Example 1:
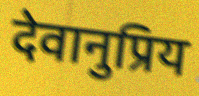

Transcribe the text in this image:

देवानुप्रिय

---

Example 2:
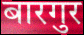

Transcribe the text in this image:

बारगुर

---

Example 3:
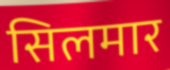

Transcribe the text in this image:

सिलमार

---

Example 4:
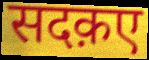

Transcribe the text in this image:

सदक़ए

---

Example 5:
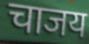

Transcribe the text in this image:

चाजय